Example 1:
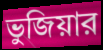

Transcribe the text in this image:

ভুজিয়ার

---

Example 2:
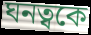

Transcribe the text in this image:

ঘনত্বকে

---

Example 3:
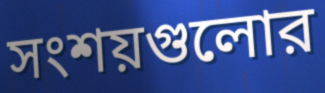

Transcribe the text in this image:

সংশয়গুলোর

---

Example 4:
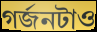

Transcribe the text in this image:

গর্জনটাও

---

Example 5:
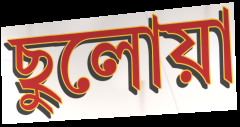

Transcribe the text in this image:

ছুলোয়া